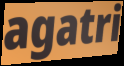
agatri